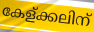
കേള്ക്കലിന്